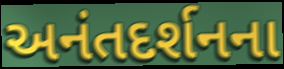
અનંતદર્શનના